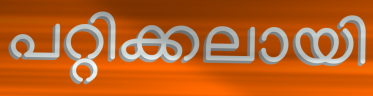
പറ്റിക്കലായി